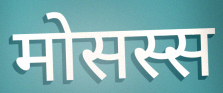
मोसस्स